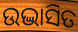
ଉଦ୍ଭାସିତ